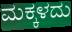
ಮಕ್ಕಳದು